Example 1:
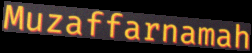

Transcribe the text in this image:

Muzaffarnamah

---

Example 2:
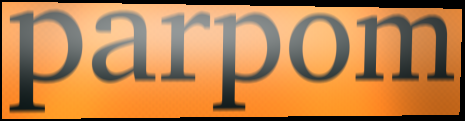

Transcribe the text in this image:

parpom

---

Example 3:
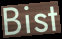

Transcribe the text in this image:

Bist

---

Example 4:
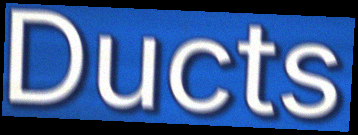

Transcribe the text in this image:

Ducts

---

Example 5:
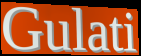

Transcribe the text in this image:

Gulati